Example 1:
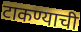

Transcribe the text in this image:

टाकण्याची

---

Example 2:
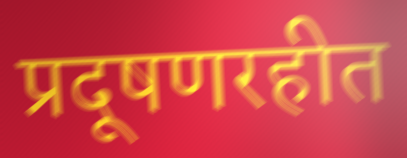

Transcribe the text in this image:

प्रदूषणरहीत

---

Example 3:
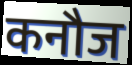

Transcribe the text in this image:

कनौज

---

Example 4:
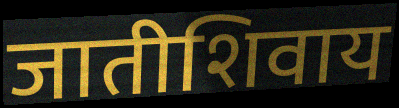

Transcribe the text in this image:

जातीशिवाय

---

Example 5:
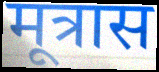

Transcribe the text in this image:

मूत्रास